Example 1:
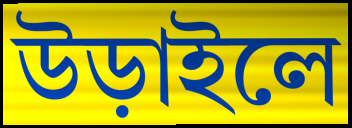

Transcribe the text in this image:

উড়াইলে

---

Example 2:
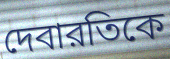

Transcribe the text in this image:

দেবারতিকে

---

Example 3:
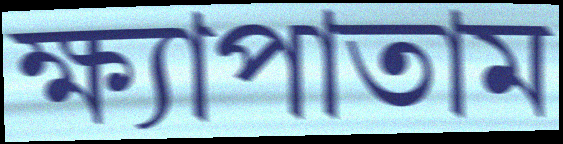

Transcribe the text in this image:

ক্ষ্যাপাতাম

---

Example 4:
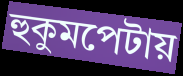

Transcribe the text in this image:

হুকুমপেটায়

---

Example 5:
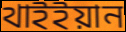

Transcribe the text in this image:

থাইইয়ান